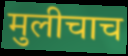
मुलीचाच